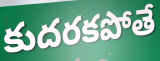
కుదరకపోతే